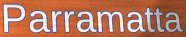
Parramatta